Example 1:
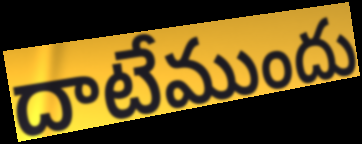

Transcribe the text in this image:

దాటేముందు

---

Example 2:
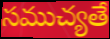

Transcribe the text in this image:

సముచ్యతే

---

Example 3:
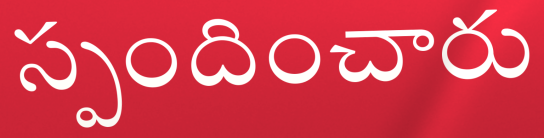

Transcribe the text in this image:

స్పందించారు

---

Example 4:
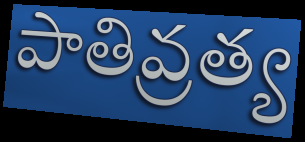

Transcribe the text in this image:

పాతివ్రత్య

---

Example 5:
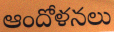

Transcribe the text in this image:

ఆందోళనలు